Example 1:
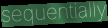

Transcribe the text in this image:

sequentially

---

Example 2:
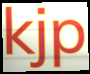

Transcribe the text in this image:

kjp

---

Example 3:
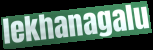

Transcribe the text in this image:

lekhanagalu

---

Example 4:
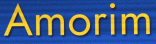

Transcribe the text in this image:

Amorim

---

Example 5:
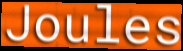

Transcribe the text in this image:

Joules